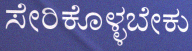
ಸೇರಿಕೊಳ್ಳಬೇಕು